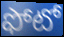
ఫోటో